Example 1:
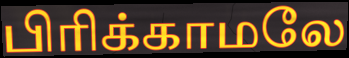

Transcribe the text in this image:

பிரிக்காமலே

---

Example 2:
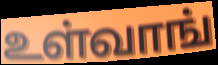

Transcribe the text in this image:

உள்வாங்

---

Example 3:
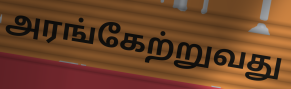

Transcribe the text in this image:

அரங்கேற்றுவது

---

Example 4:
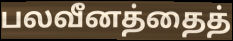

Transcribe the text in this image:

பலவீனத்தைத்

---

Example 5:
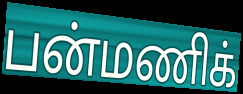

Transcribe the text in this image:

பன்மணிக்